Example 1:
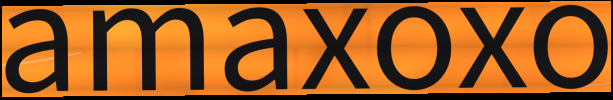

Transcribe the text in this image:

amaxoxo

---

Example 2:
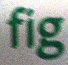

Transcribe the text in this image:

fig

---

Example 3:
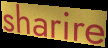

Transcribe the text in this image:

sharire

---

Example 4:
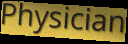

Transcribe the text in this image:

Physician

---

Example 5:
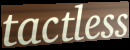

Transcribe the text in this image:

tactless